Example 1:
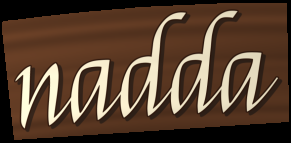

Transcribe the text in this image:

nadda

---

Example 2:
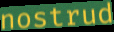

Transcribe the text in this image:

nostrud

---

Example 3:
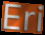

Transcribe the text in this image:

Eri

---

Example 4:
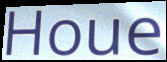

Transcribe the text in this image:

Houe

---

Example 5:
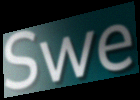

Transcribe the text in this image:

Swe